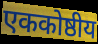
एककोष्ठीय